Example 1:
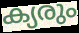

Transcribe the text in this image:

ക്യരും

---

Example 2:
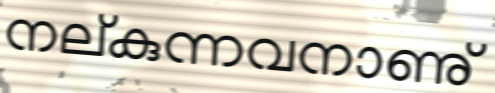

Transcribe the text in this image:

നല്കുന്നവനാണു്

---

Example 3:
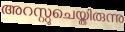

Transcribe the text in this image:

അറസ്റ്റുചെയ്തിരുന്നു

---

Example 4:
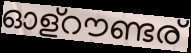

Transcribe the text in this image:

ഓള്റൗണ്ടര്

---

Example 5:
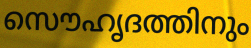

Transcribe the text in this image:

സൌഹൃദത്തിനും